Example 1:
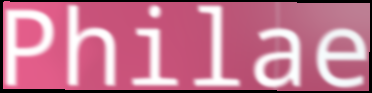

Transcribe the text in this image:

Philae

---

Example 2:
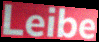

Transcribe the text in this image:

Leibe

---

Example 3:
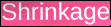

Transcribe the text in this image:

Shrinkage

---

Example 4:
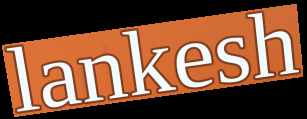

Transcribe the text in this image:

lankesh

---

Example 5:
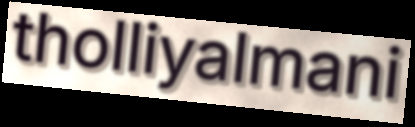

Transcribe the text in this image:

tholliyalmani